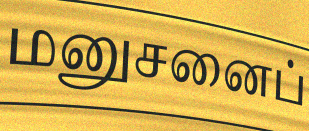
மனுசனைப்